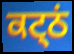
ਕਟ੍ਠਂ